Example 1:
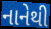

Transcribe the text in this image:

નાનેથી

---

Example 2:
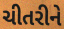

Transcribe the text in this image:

ચીતરીને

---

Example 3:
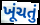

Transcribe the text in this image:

ખૂંચતું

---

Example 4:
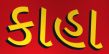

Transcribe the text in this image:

કાહા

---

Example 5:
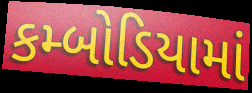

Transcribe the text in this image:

કમ્બોડિયામાં